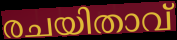
രചയിതാവ്